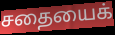
சதையைக்